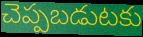
చెప్పబడుటకు